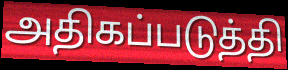
அதிகப்படுத்தி